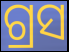
ଗ୍ରସ